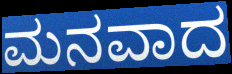
ಮನವಾದ